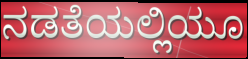
ನಡತೆಯಲ್ಲಿಯೂ